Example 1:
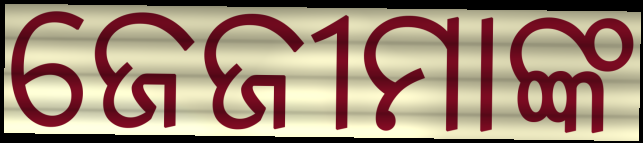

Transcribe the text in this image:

ଜେଜୀମାଙ୍କ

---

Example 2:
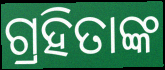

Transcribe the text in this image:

ଗ୍ରହିତାଙ୍କ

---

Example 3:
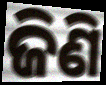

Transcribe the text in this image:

ଜିଣି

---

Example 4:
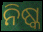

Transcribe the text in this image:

ନିଷ୍କ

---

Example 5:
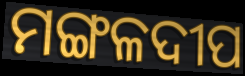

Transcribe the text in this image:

ମଙ୍ଗଳଦୀପ